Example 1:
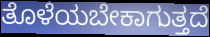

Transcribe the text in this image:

ತೊಳೆಯಬೇಕಾಗುತ್ತದೆ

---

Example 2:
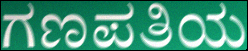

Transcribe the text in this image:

ಗಣಪತಿಯ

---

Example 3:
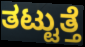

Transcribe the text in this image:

ತಟ್ಟುತ್ತೆ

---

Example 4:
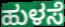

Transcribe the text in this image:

ಹುಳಸೆ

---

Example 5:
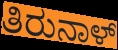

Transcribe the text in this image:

ತಿರುನಾಳ್